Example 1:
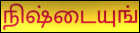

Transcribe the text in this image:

நிஷ்டையுங்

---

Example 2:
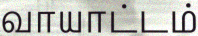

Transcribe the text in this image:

வாயாட்டம்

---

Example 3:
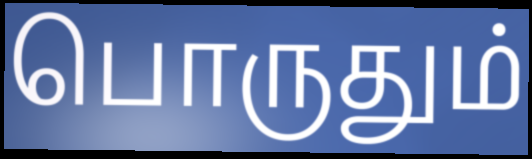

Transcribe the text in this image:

பொருதும்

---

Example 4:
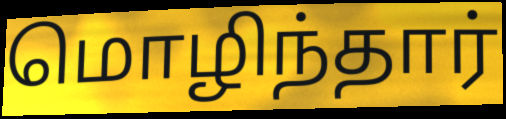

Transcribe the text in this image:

மொழிந்தார்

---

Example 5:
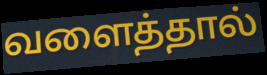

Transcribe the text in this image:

வளைத்தால்